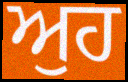
ਅੁਹ